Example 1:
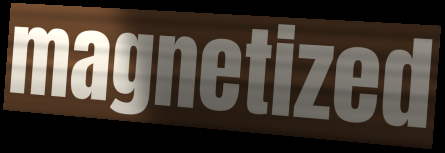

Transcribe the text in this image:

magnetized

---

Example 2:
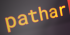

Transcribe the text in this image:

pathar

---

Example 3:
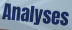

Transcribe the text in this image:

Analyses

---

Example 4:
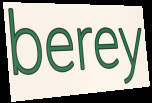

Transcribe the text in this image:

berey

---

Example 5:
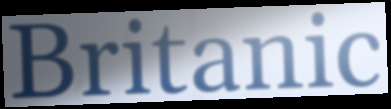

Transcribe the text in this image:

Britanic